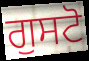
ਗੁਸਟੋ